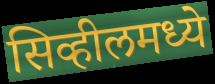
सिव्हीलमध्ये